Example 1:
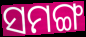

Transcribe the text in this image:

ସମଙ୍ଗ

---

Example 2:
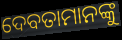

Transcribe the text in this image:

ଦେବତାମାନଙ୍କୁ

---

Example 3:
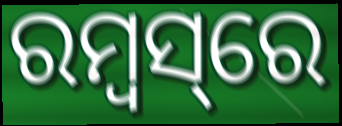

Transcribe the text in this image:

ରମ୍ବସ୍‌ରେ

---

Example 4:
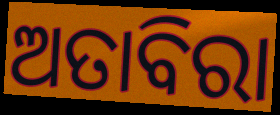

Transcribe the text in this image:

ଅତାବିରା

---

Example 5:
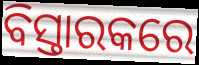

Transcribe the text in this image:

ବିସ୍ତାରକରେ